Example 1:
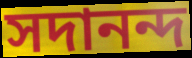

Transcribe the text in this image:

সদানন্দ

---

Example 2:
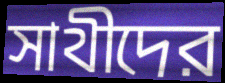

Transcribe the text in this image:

সাথীদের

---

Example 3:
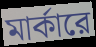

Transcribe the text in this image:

মার্কারে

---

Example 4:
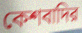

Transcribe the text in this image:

কেশবাদির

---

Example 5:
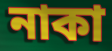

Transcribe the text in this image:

নাকা